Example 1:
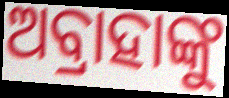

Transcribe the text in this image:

ଅବ୍ରାହାଙ୍କୁ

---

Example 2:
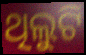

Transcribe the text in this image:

ଥିଲୁଟି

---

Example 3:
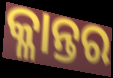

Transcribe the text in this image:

କ୍ଳାନ୍ତର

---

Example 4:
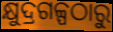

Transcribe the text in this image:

କ୍ଷୁଦ୍ରଗଳ୍ପଠାରୁ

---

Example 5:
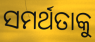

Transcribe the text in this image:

ସମର୍ଥତାକୁ